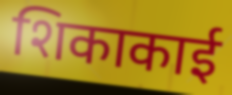
शिकाकाई